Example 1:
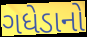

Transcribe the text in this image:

ગધેડાનો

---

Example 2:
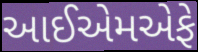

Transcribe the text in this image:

આઈએમએફે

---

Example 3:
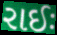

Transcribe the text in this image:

રાઈઃ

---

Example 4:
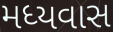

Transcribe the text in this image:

મધ્યવાસ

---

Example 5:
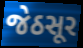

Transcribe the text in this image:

જેઠસૂર